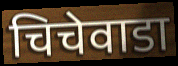
चिचेवाडा